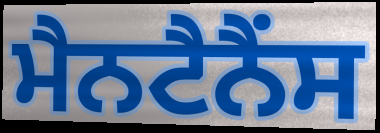
ਮੈਨਟੈਨੈਂਸ